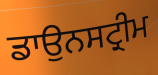
ਡਾਉਨਸਟ੍ਰੀਮ